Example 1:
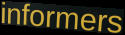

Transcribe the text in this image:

informers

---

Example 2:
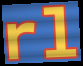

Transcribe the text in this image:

rl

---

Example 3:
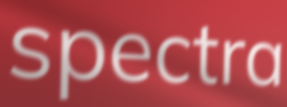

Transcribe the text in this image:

spectra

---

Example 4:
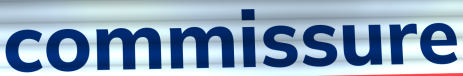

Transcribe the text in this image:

commissure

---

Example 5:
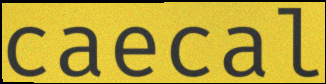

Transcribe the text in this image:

caecal